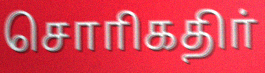
சொரிகதிர்